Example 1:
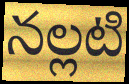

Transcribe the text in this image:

నల్లటి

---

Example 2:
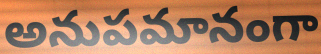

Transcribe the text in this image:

అనుపమానంగా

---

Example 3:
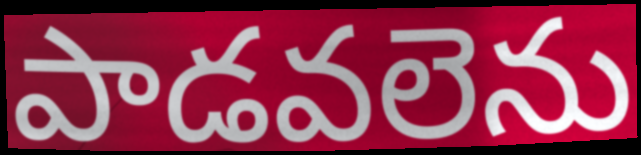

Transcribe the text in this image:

పాడవలెను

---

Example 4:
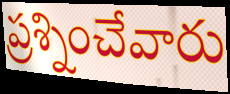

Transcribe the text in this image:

ప్రశ్నించేవారు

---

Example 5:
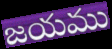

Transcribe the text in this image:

జయము